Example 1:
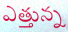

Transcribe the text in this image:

ఎత్తున్న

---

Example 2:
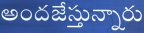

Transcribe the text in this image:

అందజేస్తున్నారు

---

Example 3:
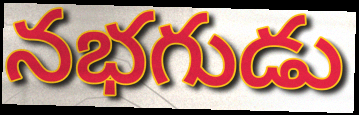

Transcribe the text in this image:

నభగుడు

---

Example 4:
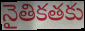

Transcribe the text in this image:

నైతికతకు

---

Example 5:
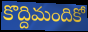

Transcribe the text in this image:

కొద్దిమందికో